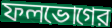
ফলভোগের